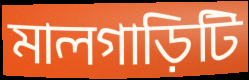
মালগাড়িটি